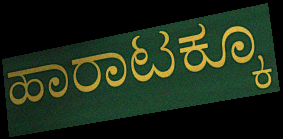
ಹಾರಾಟಕ್ಕೂ